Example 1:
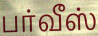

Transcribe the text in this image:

பர்வீஸ்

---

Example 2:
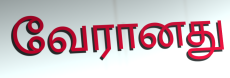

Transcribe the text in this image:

வேரானது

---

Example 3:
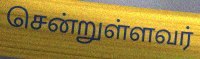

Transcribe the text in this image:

சென்றுள்ளவர்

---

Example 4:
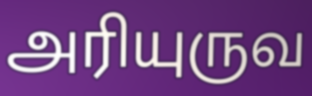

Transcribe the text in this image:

அரியுருவ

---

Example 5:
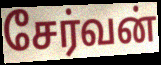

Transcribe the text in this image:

சேர்வன்